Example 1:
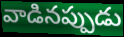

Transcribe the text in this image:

వాడినప్పుడు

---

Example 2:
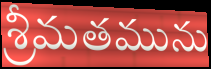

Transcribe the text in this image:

శ్రీమతమును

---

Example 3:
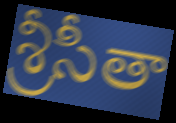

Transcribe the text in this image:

శ్రీసీతా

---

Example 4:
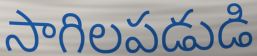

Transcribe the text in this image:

సాగిలపడుడి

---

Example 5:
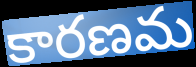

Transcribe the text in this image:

కారణమ